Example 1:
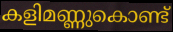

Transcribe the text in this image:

കളിമണ്ണുകൊണ്ട്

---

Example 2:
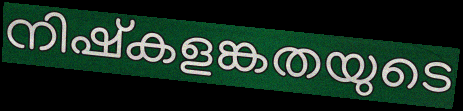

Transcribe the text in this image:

നിഷ്കളങ്കതയുടെ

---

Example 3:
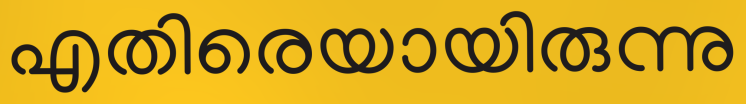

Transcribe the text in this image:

എതിരെയായിരുന്നു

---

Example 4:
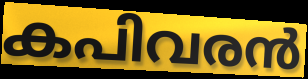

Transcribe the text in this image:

കപിവരൻ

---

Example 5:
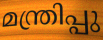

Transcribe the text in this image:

മന്ത്രിപ്പു